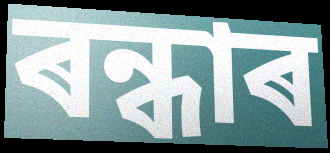
ৰন্ধাৰ